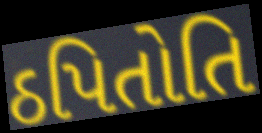
ઠપિતોતિ